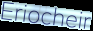
Eriocheir